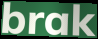
brak